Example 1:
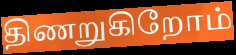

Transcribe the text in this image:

திணறுகிறோம்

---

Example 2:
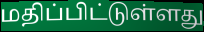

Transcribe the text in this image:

மதிப்பிட்டுள்ளது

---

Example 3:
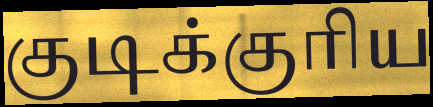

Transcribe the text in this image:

குடிக்குரிய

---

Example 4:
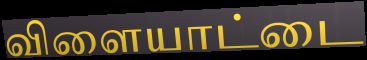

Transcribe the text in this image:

விளையாட்டை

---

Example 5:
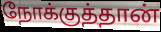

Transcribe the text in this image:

நோக்குத்தான்